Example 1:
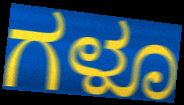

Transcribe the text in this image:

ಗಳೂ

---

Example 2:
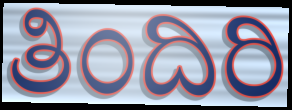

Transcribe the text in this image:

ತಿಂದಿರಿ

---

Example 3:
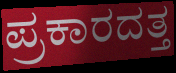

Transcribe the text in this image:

ಪ್ರಕಾರದತ್ತ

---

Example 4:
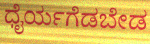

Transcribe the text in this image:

ಧೈರ್ಯಗೆಡಬೇಡ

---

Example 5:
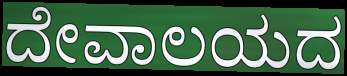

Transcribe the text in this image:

ದೇವಾಲಯದ